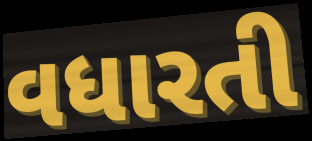
વધારતી